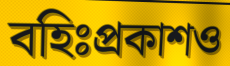
বহিঃপ্রকাশও